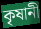
কৃষানী